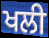
ਖਲੀ